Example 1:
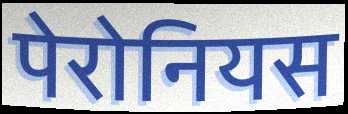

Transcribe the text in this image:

पेरोनियस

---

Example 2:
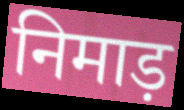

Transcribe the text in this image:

निमाड़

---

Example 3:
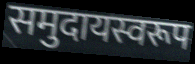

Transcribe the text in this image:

समुदायस्वरूप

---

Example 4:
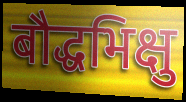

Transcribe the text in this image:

बौद्धभिक्षु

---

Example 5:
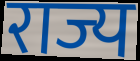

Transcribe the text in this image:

राज्‍य